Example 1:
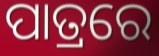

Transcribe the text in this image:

ପାତ୍ରରେ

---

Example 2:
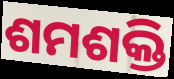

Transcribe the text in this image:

ଶମଶକ୍ତି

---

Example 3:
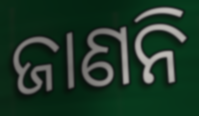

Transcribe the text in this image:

ଜାଣନି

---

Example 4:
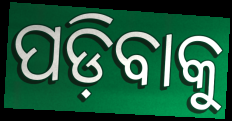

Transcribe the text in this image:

ପଡ଼ିବାକୁ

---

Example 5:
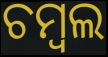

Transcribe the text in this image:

ଚମ୍ବଲ